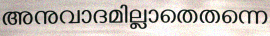
അനുവാദമില്ലാതെതന്നെ